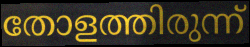
തോളത്തിരുന്ന്